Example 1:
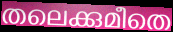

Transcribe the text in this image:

തലെക്കുമീതെ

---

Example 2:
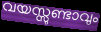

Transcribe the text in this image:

വയസ്സുണ്ടാവും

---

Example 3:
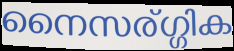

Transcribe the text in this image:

നൈസര്ഗ്ഗിക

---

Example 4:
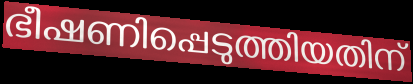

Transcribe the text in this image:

ഭീഷണിപ്പെടുത്തിയതിന്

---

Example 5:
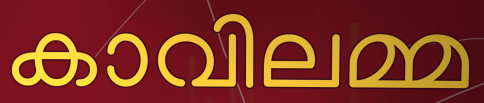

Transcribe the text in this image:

കാവിലമ്മ